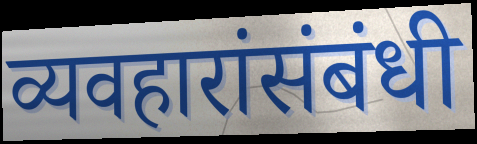
व्यवहारांसंबंधी